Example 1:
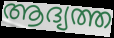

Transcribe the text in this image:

ആദ്യത്ത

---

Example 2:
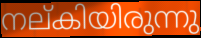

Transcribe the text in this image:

നല്കിയിരുന്നു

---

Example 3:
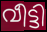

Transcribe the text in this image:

വീട്ടി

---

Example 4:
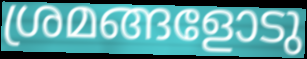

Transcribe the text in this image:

ശ്രമങ്ങളോടു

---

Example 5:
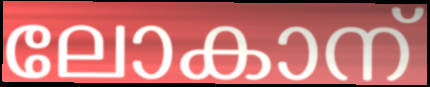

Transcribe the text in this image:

ലോകാന്